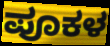
ಪೂಕಳ